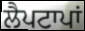
ਲੈਪਟਾਪਾਂ